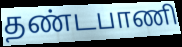
தண்டபாணி